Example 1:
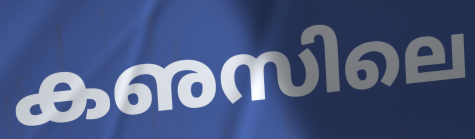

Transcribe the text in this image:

കഌസിലെ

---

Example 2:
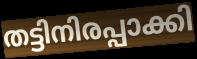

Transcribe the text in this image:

തട്ടിനിരപ്പാക്കി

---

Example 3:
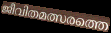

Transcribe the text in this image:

ജീവിതമത്സരത്തെ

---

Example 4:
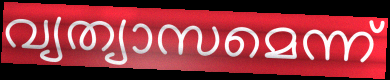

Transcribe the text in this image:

വ്യത്യാസമെന്ന്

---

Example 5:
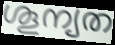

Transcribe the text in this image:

ശൂന്യത